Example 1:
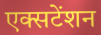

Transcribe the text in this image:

एक्सटेंशन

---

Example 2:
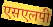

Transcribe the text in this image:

एसएलपी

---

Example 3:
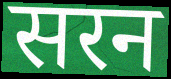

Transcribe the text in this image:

सरन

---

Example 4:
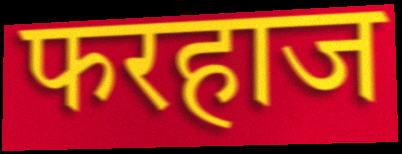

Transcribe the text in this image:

फरहाज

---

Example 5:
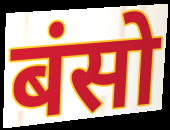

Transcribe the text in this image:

बंसो